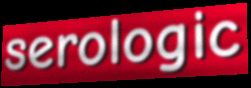
serologic